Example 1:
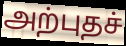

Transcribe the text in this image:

அற்புதச்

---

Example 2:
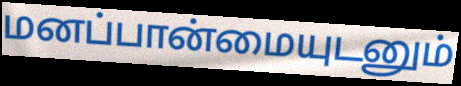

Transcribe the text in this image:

மனப்பான்மையுடனும்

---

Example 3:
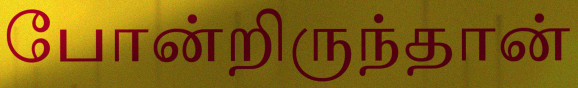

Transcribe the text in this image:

போன்றிருந்தான்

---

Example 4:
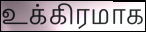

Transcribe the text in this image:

உக்கிரமாக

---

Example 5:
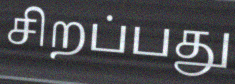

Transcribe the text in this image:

சிறப்பது